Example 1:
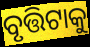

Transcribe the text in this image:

ବୃତ୍ତିଟାକୁ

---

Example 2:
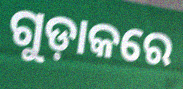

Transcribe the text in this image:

ଗୁଡ଼ାକରେ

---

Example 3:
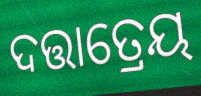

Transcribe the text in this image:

ଦତ୍ତାତ୍ରେୟ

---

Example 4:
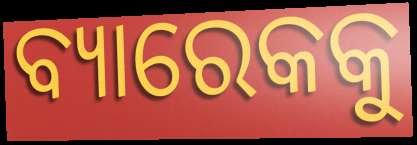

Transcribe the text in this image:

ବ୍ୟାରେକକୁ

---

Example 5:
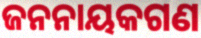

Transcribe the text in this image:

ଜନନାୟକଗଣ